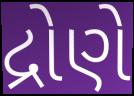
દ્રોણે